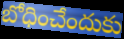
బోధించేందుకు